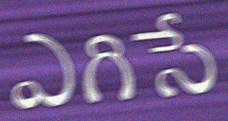
ఎగిసే